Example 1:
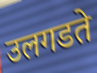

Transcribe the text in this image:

उलगडते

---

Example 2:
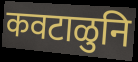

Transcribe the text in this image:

कवटाळुनि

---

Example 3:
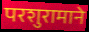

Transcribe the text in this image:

परशुरामाने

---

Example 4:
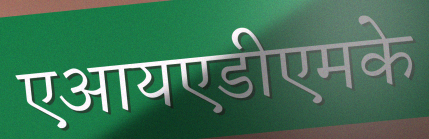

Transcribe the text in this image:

एआयएडीएमके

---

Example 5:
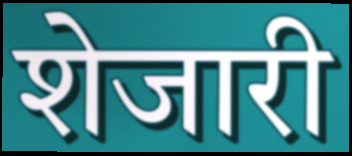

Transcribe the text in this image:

शेजारी